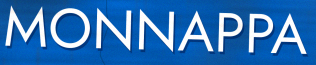
MONNAPPA